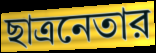
ছাত্রনেতার